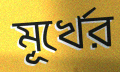
মূর্খের